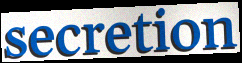
secretion